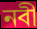
নবী